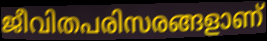
ജീവിതപരിസരങ്ങളാണ്